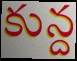
కున్ద